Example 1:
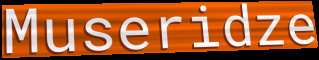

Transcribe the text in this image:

Museridze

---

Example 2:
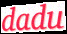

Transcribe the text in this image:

dadu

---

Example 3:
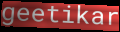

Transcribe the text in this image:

geetikar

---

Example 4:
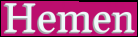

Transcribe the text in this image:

Hemen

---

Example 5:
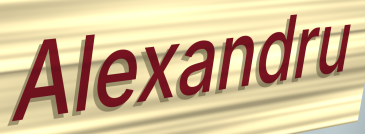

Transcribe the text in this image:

Alexandru